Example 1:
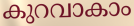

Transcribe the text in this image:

കുറവാകാം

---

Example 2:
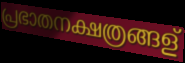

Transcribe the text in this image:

പ്രഭാതനക്ഷത്രങ്ങള്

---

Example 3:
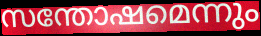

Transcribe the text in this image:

സന്തോഷമെന്നും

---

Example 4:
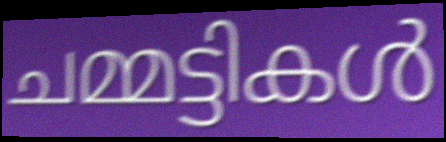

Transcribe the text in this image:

ചമ്മട്ടികൾ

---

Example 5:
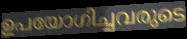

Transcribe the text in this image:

ഉപയോഗിച്ചവരുടെ